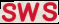
sws